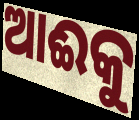
ଆଈକୁ